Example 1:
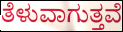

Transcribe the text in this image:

ತೆಳುವಾಗುತ್ತವೆ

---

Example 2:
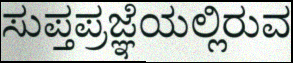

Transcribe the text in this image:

ಸುಪ್ತಪ್ರಜ್ಞೆಯಲ್ಲಿರುವ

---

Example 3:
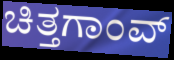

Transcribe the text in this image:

ಚಿತ್ತಗಾಂವ್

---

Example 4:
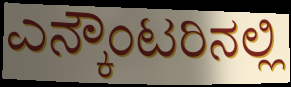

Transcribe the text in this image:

ಎನ್ಕೌಂಟರಿನಲ್ಲಿ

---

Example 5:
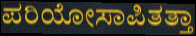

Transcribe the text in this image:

ಪರಿಯೋಸಾಪಿತತ್ತಾ